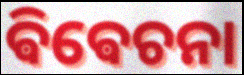
ଵିଵେଚନା